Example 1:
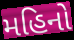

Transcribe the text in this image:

મહિનો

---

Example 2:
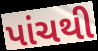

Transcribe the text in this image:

પાંચથી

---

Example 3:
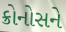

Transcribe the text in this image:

ક્રોનોસને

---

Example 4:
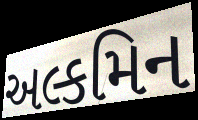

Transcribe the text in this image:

અલ્કમિન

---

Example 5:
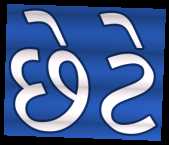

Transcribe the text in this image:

છેટે